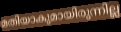
മതിയാകുമായിരുന്നില്ല